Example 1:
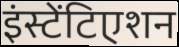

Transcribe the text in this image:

इंस्टेंटिएशन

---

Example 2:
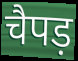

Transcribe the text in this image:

चैपड़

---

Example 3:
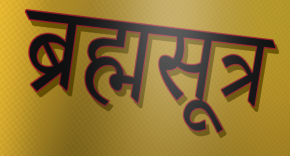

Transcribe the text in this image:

ब्रह्मसूत्र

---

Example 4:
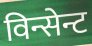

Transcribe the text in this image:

विन्सेन्ट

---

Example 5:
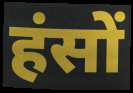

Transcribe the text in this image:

हंसों